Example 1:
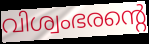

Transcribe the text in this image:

വിശ്വംഭരന്റെ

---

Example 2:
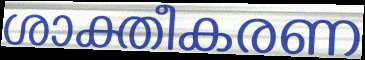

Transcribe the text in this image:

ശാക്തീകരണ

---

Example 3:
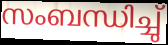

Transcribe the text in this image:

സംബന്ധിച്ചു്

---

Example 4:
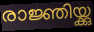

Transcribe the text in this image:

രാജ്ഞിയ്ക്കു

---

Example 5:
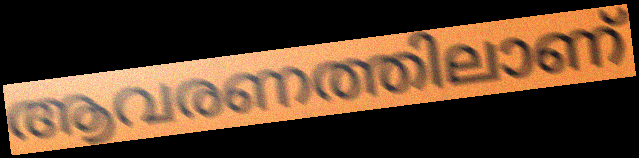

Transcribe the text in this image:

ആവരണത്തിലാണ്